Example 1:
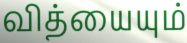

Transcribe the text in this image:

வித்யையும்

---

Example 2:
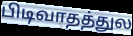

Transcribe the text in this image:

பிடிவாதத்துல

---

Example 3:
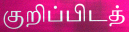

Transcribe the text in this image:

குறிப்பிடத்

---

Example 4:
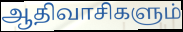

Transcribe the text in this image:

ஆதிவாசிகளும்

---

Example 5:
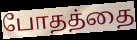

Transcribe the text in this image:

போதத்தை